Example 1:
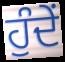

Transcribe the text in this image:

ਹੁੰਦੇਂ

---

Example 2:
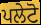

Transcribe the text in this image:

ਪਲੇਟੋ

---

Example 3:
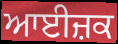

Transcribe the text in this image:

ਆਈਜ਼ਕ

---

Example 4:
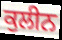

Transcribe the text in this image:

ਕੁਲੀਨ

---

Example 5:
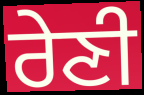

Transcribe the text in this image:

ਰੇਣੀ